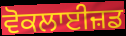
ਵੋਕਲਾਈਜ਼ਡ